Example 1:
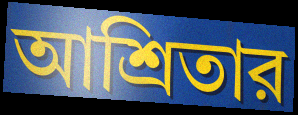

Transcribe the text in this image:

আশ্রিতার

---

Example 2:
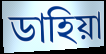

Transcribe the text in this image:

ডাহিয়া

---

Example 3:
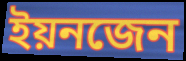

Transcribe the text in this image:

ইয়নজেন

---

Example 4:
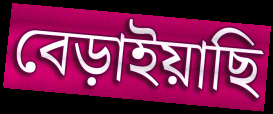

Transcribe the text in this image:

বেড়াইয়াছি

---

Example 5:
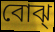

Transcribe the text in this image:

বোঝ্